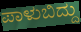
ಪಾಳುಬಿದ್ದು